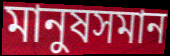
মানুষসমান